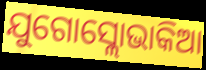
ଯୁଗୋସ୍ଲୋଭାକିଆ